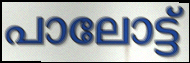
പാലോട്ട്